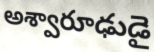
అశ్వారూఢుడై